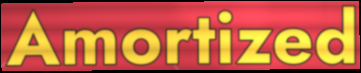
Amortized